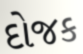
દોજક